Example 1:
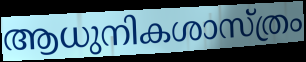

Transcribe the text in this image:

ആധുനികശാസ്ത്രം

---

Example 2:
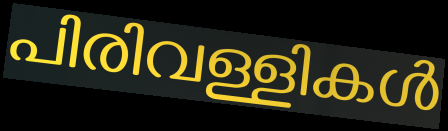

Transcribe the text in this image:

പിരിവള്ളികൾ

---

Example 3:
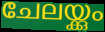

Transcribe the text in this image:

ചേലയ്ക്കും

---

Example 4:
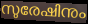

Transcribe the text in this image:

സുരേഷിനും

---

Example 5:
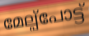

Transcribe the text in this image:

മേല്പ്പോട്ട്